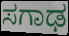
ಸಗಾಢ